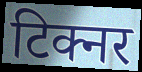
टिक्नर